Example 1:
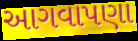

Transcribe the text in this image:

આગવાપણા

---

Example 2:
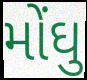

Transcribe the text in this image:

મોંઘુ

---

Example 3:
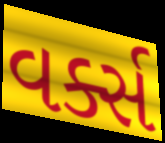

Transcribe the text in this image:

વર્ક્સ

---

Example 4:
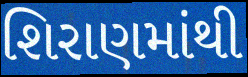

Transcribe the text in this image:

શિરાણમાંથી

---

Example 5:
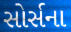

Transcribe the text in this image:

સોર્સના